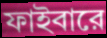
ফাইবারে